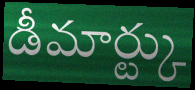
డీమార్ట్కు